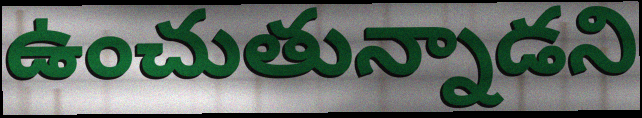
ఉంచుతున్నాడని